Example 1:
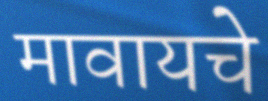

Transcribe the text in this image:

मावायचे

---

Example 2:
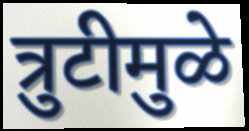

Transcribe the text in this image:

त्रुटीमुळे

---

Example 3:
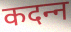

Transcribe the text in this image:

कदन्न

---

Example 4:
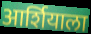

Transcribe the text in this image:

आर्शियाला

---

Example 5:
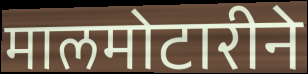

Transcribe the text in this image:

मालमोटारीने